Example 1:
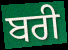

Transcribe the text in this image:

ਬਰੀ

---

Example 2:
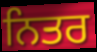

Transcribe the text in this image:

ਨਿਤਰ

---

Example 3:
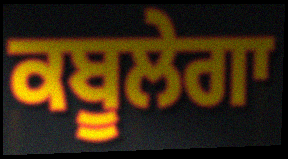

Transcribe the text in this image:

ਕਬੂਲੇਗਾ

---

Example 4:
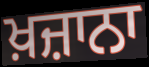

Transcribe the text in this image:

ਖ਼ਜ਼ਾਨਾ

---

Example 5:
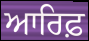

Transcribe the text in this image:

ਆਰਿਫ਼